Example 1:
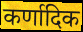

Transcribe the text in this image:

कर्णादिक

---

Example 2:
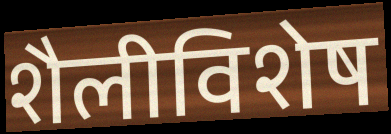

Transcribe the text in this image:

शैलीविशेष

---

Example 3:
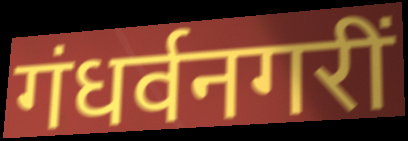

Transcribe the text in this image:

गंधर्वनगरीं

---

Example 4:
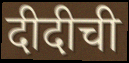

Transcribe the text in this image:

दीदीची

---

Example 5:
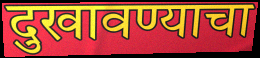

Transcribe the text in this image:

दुखावण्याचा